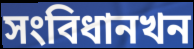
সংবিধানখন